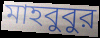
মাহবুবুর